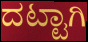
ದಟ್ಟಾಗಿ